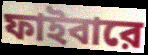
ফাইবারে